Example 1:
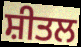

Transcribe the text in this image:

ਸ਼ੀਤਲ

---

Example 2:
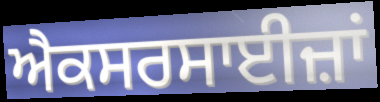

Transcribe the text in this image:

ਐਕਸਰਸਾਈਜ਼ਾਂ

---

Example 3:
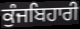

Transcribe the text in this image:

ਕੁੰਜਬਿਹਾਰੀ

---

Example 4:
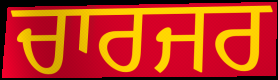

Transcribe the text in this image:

ਚਾਰਜਰ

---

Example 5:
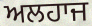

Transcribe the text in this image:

ਅਲਹਾਜ